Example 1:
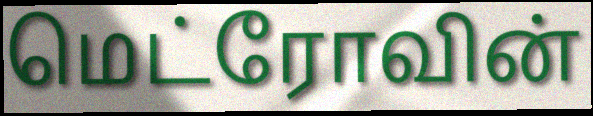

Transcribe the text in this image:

மெட்ரோவின்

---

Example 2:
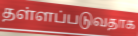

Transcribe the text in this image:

தள்ளப்படுவதாக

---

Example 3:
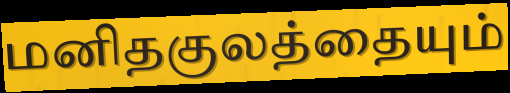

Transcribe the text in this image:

மனிதகுலத்தையும்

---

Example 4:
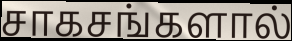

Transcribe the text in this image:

சாகசங்களால்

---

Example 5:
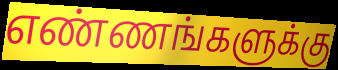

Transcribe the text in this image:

எண்ணங்களுக்கு